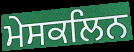
ਮੇਸਕਲਿਨ